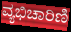
ವ್ಯಭಿಚಾರಿಣಿ